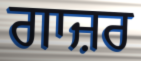
ਗਾਜ਼ਰ